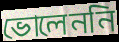
ভোলেননি